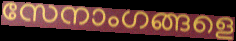
സേനാംഗങ്ങളെ